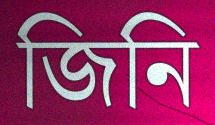
জিনি